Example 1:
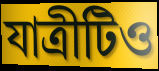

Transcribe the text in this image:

যাত্রীটিও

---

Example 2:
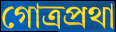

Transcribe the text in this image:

গোত্রপ্রথা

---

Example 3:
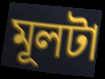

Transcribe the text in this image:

মূলটা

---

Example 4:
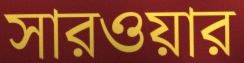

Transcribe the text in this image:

সারওয়ার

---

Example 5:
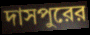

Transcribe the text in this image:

দাসপুরের